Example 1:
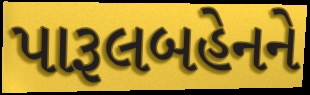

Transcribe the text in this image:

પારૂલબહેનને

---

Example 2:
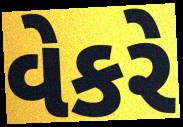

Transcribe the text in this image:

વેકરે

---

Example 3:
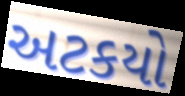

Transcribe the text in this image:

અટકયો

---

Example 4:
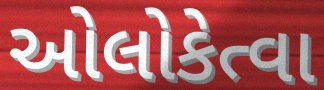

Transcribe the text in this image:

ઓલોકેત્વા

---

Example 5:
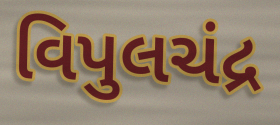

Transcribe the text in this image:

વિપુલચંદ્ર